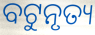
ବଟୁନୃତ୍ୟ